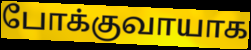
போக்குவாயாக